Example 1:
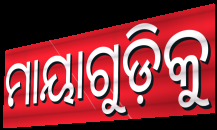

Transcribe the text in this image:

ମାୟାଗୁଡ଼ିକୁ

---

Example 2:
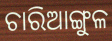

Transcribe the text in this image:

ଚାରିଆଙ୍ଗୁଳ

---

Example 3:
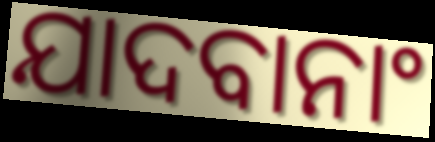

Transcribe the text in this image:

ଯାଦବାନାଂ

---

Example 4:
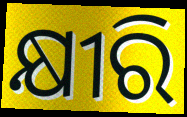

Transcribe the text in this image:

କ୍ଷୀରି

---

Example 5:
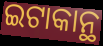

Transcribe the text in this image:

ଇଟାକାନ୍ଥ